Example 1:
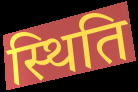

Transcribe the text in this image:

स्‍थिति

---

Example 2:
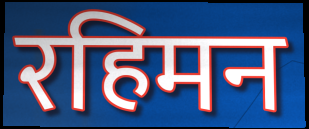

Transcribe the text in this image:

रहिमन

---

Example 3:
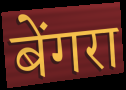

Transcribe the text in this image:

बेंगरा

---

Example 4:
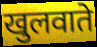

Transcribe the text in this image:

खुलवाते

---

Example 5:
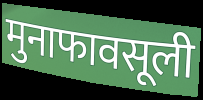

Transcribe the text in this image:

मुनाफावसूली